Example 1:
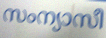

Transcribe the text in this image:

സംന്യാസീ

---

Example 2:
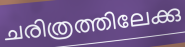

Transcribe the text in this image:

ചരിത്രത്തിലേക്കു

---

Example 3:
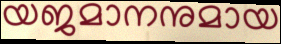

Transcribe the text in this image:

യജമാനനുമായ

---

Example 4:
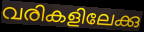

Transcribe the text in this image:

വരികളിലേക്കു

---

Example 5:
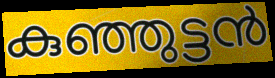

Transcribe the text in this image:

കുഞ്ഞുട്ടൻ